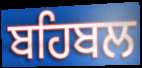
ਬਹਿਬਲ